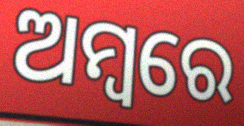
ଅମ୍ବରେ